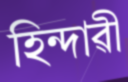
হিন্দাৱী